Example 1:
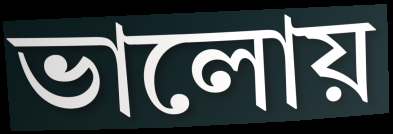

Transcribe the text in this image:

ভালোয়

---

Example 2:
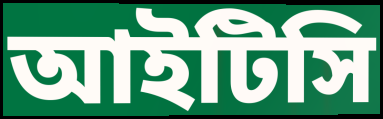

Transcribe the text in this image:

আইটিসি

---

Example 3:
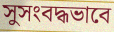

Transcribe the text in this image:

সুসংবদ্ধভাবে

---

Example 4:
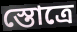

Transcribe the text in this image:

স্তোত্রে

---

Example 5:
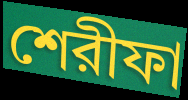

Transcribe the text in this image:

শেরীফা